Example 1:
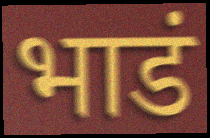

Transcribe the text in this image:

भाडं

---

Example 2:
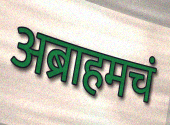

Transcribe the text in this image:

अब्राहमचं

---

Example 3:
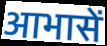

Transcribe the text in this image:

आभासें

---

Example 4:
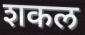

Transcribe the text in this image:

शकल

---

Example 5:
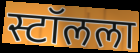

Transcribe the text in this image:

स्टॉलला